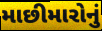
માછીમારોનું